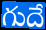
గుదే